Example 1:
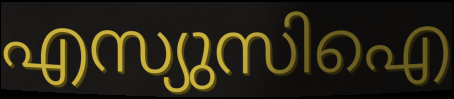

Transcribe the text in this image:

എസ്യുസിഐ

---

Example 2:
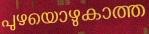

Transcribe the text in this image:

പുഴയൊഴുകാത്ത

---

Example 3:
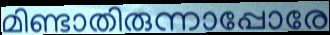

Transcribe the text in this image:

മിണ്ടാതിരുന്നാപ്പോരേ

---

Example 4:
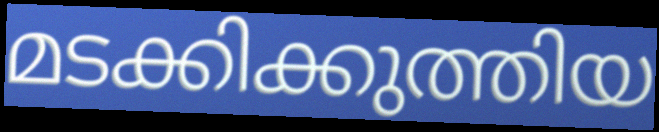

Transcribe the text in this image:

മടക്കിക്കുത്തിയ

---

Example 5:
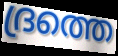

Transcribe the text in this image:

ദ്രത്തെ